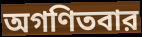
অগণিতবার